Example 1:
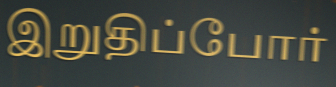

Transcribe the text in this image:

இறுதிப்போர்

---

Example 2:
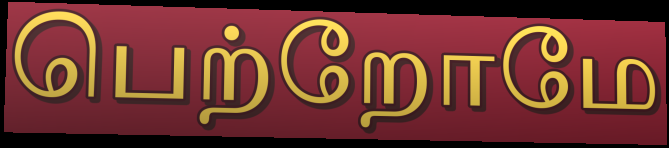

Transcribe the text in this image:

பெற்றோமே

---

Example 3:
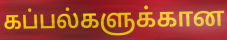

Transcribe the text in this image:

கப்பல்களுக்கான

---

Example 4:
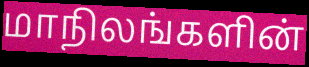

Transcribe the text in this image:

மாநிலங்களின்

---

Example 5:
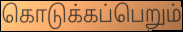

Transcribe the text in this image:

கொடுக்கப்பெறும்